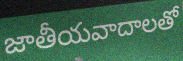
జాతీయవాదాలతో